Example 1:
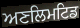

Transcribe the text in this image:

ਅਣਲਿਮਟਿਡ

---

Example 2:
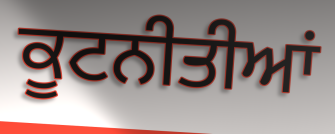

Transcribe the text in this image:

ਕੂਟਨੀਤੀਆਂ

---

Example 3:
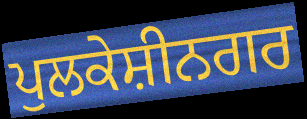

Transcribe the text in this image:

ਪੁਲਕੇਸ਼ੀਨਗਰ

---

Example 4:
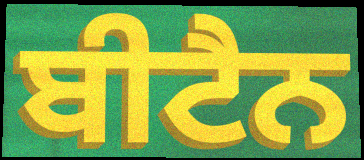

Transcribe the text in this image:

ਬੀਟੈਨ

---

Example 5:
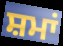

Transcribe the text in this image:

ਸ਼ਮਾਂ